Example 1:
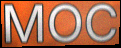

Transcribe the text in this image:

MOC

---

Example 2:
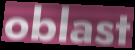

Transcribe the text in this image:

oblast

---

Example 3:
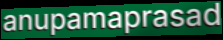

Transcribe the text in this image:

anupamaprasad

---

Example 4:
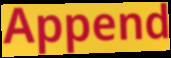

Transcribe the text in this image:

Append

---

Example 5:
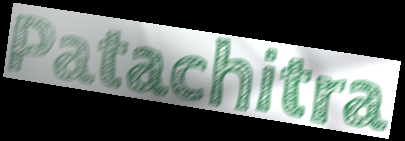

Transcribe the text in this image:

Patachitra